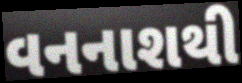
વનનાશથી